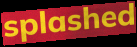
splashed